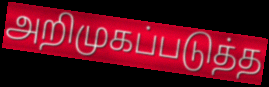
அறிமுகப்படுத்த